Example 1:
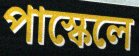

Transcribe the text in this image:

পাস্কেলে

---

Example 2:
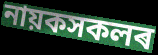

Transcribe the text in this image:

নায়কসকলৰ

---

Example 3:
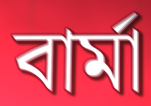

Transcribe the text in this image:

বাৰ্মা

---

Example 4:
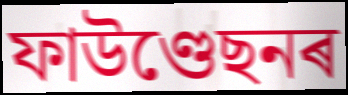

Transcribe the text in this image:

ফাউণ্ডেছনৰ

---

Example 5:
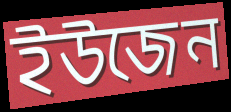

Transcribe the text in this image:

ইউজেন